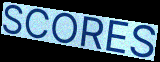
SCORES